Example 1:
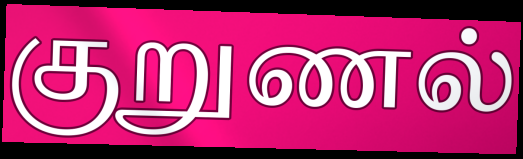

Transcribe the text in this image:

குறுணல்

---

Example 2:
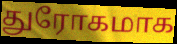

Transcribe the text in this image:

துரோகமாக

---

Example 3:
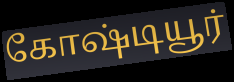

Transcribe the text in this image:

கோஷ்டியூர்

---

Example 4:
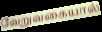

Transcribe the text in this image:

வேறுவகையால்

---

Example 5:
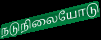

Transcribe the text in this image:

நடுநிலையோடு